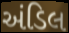
અંડિલ